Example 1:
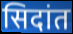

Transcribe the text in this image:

सिदांत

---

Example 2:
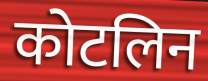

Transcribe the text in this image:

कोटलिन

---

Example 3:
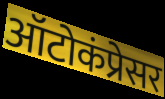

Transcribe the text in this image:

ऑटोकंप्रेसर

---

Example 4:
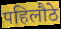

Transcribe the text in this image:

पहिलौठे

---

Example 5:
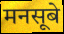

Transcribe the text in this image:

मनसूबे